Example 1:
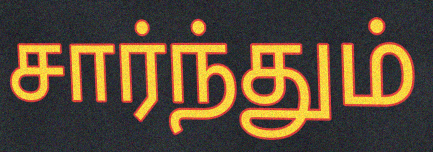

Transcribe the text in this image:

சார்ந்தும்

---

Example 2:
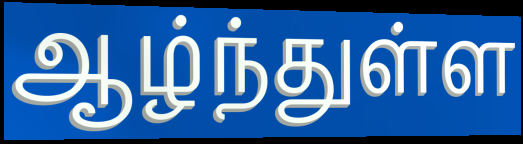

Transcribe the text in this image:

ஆழ்ந்துள்ள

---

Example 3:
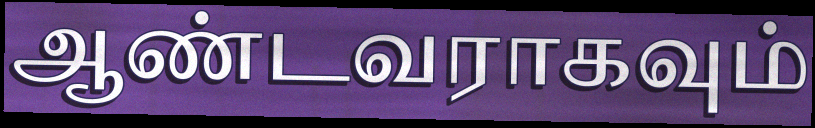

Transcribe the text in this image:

ஆண்டவராகவும்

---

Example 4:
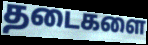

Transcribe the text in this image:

தடைகளை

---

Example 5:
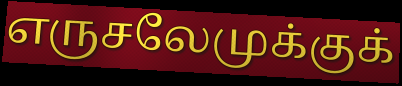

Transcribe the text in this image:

எருசலேமுக்குக்